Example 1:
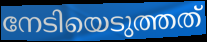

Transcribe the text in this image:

നേടിയെടുത്തത്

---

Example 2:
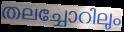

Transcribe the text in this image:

തലച്ചോറിലും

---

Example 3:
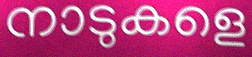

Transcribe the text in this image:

നാടുകളെ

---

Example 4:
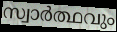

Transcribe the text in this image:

സ്വാർത്ഥവും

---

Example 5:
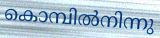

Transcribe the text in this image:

കൊമ്പിൽനിന്നു